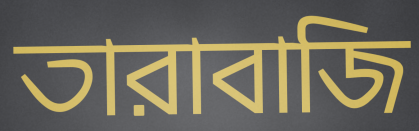
তারাবাজি